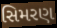
સિમરણ